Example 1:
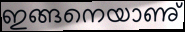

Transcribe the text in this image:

ഇങ്ങനെയാണു്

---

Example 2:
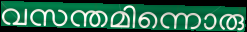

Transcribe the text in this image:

വസന്തമിന്നൊരു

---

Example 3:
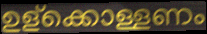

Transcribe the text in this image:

ഉള്ക്കൊള്ളണം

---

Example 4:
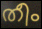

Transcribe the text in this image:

തീം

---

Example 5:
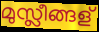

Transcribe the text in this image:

മുസ്ലീങ്ങള്